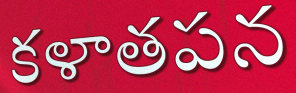
కళాతపన